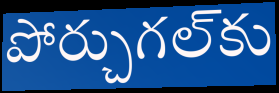
పోర్చుగల్‌కు